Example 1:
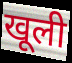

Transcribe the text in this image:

खूली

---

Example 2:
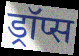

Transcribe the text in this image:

ड्रॉप्‍स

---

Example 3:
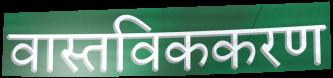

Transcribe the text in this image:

वास्तविककरण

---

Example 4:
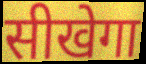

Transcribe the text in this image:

सीखेगा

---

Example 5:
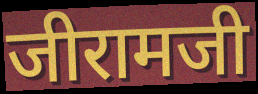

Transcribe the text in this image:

जीरामजी